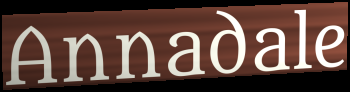
Annadale